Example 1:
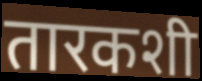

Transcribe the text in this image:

तारकशी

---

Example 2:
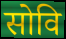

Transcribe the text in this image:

सोवि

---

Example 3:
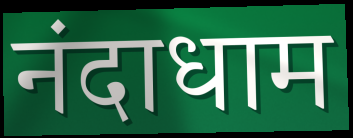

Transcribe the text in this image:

नंदाधाम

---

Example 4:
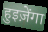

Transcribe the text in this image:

हुइज़ेंगा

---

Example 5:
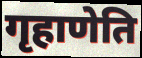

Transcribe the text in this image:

गृहाणेति